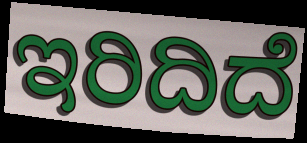
ಇರಿದಿದೆ